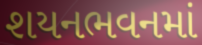
શયનભવનમાં